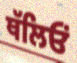
ਥੱਲਿਓਂ